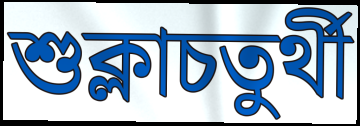
শুক্লাচতুৰ্থী